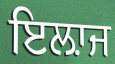
ਇਲ਼ਾਜ